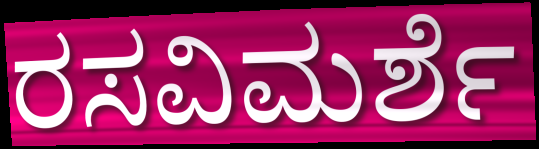
ರಸವಿಮರ್ಶೆ